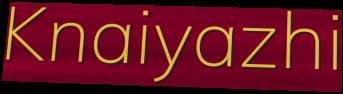
Knaiyazhi